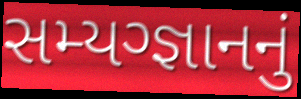
સમ્યગ્જ્ઞાનનું